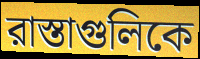
রাস্তাগুলিকে